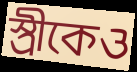
স্ত্রীকেও